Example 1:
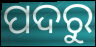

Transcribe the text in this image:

ପଦରୁ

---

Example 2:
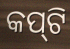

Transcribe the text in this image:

କପ୍‌ଟି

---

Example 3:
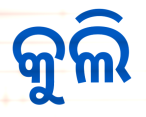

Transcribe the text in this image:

କୁଲି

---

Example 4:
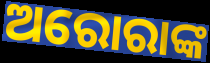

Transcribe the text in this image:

ଅରୋରାଙ୍କ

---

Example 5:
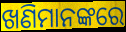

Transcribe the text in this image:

ଖଣିମାନଙ୍କରେ